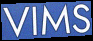
VIMS